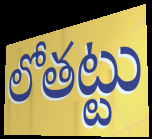
లోతట్టు